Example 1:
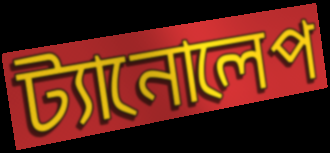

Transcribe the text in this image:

ট্যানোলেপ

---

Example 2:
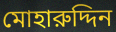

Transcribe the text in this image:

মোহারুদ্দিন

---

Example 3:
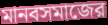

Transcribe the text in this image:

মানবসমাজের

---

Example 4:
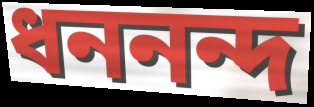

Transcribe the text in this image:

ধননন্দ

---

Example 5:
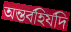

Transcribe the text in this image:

অন্তর্বহির্যদি